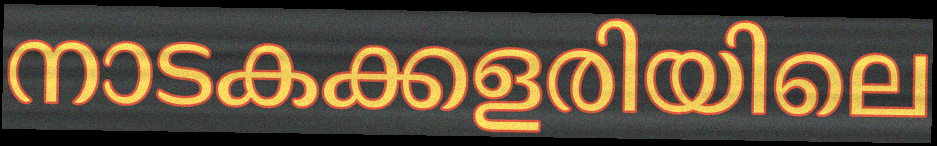
നാടകക്കളരിയിലെ